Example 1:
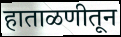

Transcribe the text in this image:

हाताळणीतून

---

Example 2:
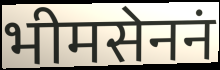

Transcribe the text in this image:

भीमसेननं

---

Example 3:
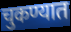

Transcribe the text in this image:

चुकण्यात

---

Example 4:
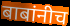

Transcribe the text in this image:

बाबांनीच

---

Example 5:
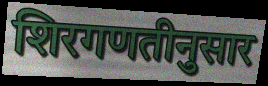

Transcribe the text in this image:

शिरगणतीनुसार